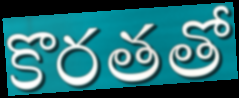
కొరతతో